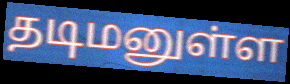
தடிமனுள்ள